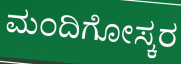
ಮಂದಿಗೋಸ್ಕರ